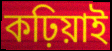
কঢ়িয়াই